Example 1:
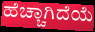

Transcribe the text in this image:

ಹೆಚ್ಚಾಗಿದೆಯೆ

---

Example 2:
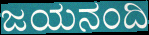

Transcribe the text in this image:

ಜಯನಂದಿ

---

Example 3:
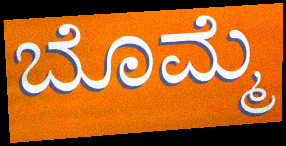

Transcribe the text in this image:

ಬೊಮ್ಮೆ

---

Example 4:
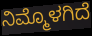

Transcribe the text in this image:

ನಿಮ್ಮೊಳಗಿದೆ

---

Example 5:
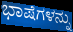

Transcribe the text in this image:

ಭಾಷೆಗಳನ್ನು